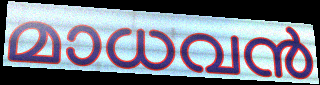
മാധവൻ